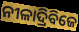
ନୀଳାଦ୍ରିବିଜେ